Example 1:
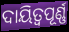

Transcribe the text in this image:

ଦାୟିତ୍ବପୂର୍ଣ୍ଣ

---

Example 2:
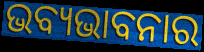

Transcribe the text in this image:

ଭବ୍ୟଭାବନାର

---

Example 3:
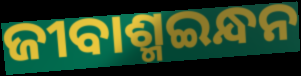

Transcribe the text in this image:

ଜୀବାଶ୍ମଇନ୍ଧନ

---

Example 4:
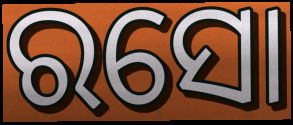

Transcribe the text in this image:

ରସୋ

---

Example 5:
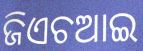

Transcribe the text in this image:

ଜିଏଚଆଇ